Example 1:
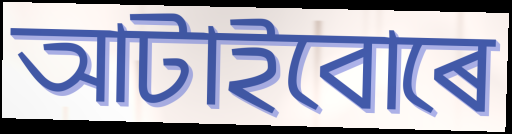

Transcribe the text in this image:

আটাইবোৰে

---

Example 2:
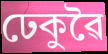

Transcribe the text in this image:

ঢেকুৱৈ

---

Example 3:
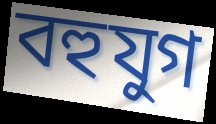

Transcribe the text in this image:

বহুযুগ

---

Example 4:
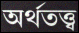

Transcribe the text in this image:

অৰ্থতত্ত্ব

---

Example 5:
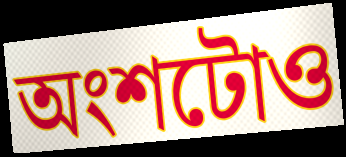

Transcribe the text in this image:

অংশটোও